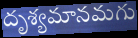
దృశ్యమానమగు